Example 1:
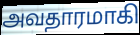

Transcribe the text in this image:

அவதாரமாகி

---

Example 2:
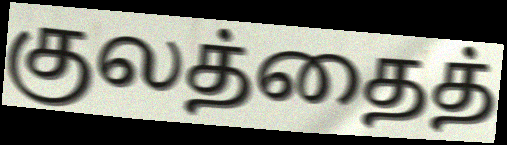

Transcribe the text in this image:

குலத்தைத்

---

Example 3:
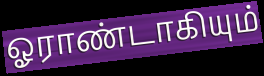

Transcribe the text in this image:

ஓராண்டாகியும்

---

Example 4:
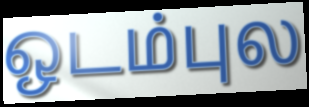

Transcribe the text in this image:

ஒடம்புல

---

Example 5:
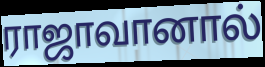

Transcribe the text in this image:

ராஜாவானால்